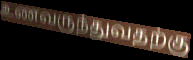
உணவருந்துவதற்கு